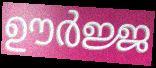
ഊർജ്ജ